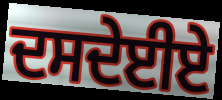
ਦਸਦੇਈਏ